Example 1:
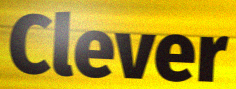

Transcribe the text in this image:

Clever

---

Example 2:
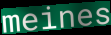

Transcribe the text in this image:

meines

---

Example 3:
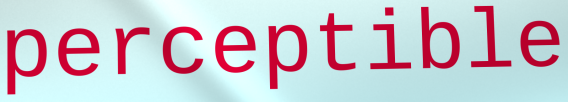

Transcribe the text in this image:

perceptible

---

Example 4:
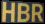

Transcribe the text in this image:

HBR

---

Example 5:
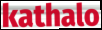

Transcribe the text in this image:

kathalo